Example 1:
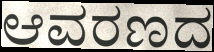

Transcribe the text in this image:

ಆವರಣದ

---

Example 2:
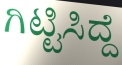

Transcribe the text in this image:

ಗಿಟ್ಟಿಸಿದ್ದೆ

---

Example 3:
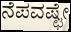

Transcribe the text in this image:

ನೆಪವಷ್ಟೇ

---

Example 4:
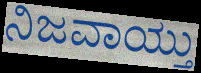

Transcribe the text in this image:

ನಿಜವಾಯ್ತು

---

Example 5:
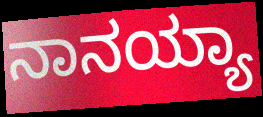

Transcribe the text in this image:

ನಾನಯ್ಯಾ